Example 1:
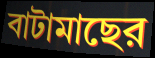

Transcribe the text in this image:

বাটামাছের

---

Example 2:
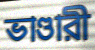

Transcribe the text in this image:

ভাণ্ডারী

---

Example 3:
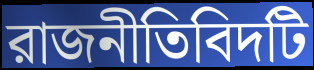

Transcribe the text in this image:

রাজনীতিবিদটি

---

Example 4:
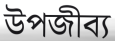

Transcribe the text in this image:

উপজীব্য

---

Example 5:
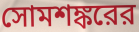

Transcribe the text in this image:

সোমশঙ্করের